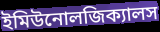
ইমিউনোলজিক্যালস